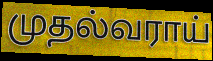
முதல்வராய்